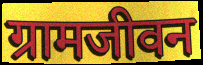
ग्रामजीवन